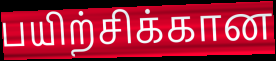
பயிற்சிக்கான